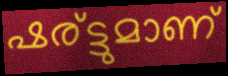
ഷര്ട്ടുമാണ്